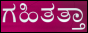
ಗಹಿತತ್ತಾ